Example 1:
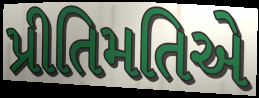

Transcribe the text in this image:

પ્રીતિમતિએ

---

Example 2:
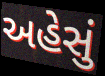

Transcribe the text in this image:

અહેસું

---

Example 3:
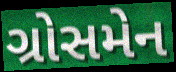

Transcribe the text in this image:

ગ્રોસમેન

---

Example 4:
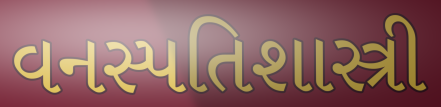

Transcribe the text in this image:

વનસ્પતિશાસ્ત્રી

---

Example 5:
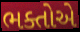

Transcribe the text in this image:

ભક્તોએ